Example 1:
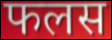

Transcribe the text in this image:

फलस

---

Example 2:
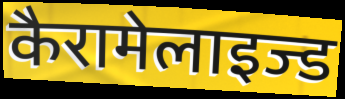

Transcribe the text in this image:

कैरामेलाइज्ड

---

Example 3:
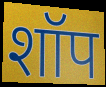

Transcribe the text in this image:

शॉप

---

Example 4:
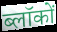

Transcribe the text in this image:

ब्लॉकों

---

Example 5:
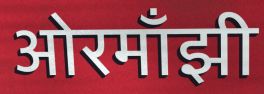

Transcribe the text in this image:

ओरमाँझी